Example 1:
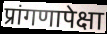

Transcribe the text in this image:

प्रांगणापेक्षा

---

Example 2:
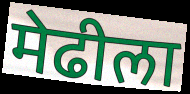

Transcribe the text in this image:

मेढीला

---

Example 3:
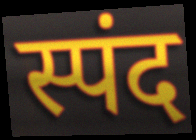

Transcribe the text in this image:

स्पंद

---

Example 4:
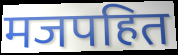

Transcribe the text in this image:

मजपहित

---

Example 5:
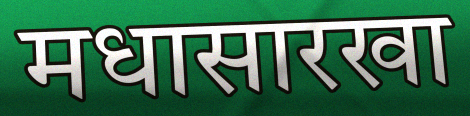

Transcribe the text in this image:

मधासारखा